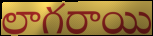
లాగరాయి